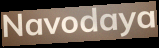
Navodaya